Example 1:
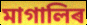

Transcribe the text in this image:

মাগালিৰ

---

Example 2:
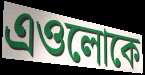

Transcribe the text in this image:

এওলোকে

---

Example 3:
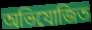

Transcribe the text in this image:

অভিযোজিত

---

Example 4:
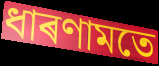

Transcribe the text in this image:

ধাৰণামতে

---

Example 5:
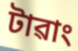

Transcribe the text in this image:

টাৱাং